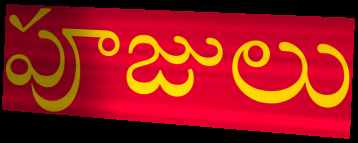
పూజులు